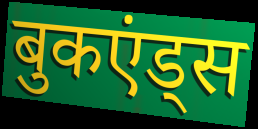
बुकएंड्स